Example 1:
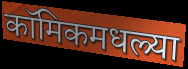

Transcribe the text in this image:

कॉमिकमधल्या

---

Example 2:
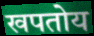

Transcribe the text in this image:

खपतोय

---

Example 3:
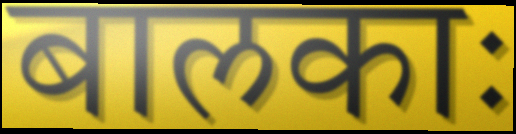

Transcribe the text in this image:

बालकाः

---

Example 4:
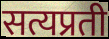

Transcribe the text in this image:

सत्यप्रती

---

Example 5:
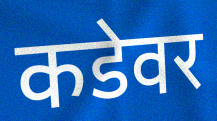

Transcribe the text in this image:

कडेवर